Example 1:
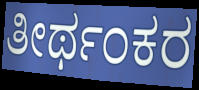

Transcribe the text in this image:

ತೀರ್ಥಂಕರ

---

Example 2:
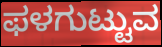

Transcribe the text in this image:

ಫಳಗುಟ್ಟುವ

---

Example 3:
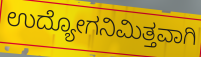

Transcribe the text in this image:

ಉದ್ಯೋಗನಿಮಿತ್ತವಾಗಿ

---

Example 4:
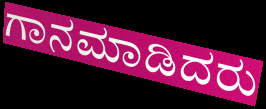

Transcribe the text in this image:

ಗಾನಮಾಡಿದರು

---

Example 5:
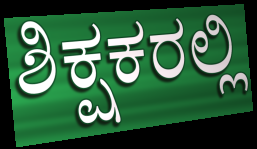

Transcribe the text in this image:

ಶಿಕ್ಷಕರಲ್ಲಿ